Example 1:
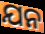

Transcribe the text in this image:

ଯନ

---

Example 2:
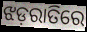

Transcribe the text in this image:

ଝଡ଼ରାତିରେ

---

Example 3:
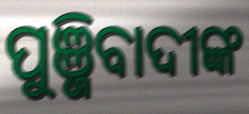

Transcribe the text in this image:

ପୁଞ୍ଜିବାଦୀଙ୍କ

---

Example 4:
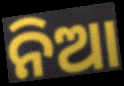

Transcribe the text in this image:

ନିଆ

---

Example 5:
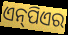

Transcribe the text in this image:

ଏନ୍‌ପିଏର